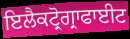
ਇਲੈਕਟ੍ਰੋਗ੍ਰਾਫਾਈਟ